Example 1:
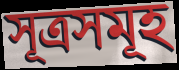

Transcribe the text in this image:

সূত্রসমূহ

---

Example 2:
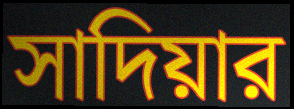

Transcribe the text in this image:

সাদিয়ার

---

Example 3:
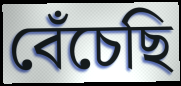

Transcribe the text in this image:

বেঁচেছি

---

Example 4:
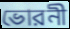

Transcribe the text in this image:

ভোরনী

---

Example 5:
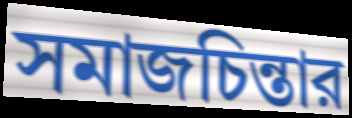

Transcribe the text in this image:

সমাজচিন্তার